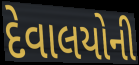
દેવાલયોની